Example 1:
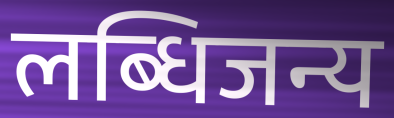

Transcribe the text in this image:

लब्धिजन्य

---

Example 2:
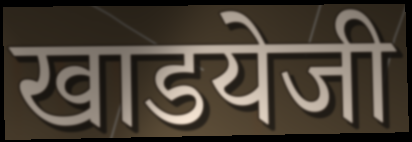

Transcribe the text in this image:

खाडयेजी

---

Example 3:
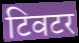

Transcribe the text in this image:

टिवटर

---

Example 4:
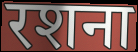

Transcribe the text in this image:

रशना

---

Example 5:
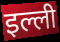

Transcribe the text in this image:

इल्ली